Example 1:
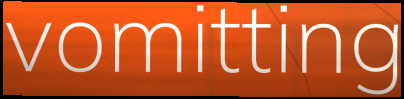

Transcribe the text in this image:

vomitting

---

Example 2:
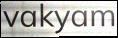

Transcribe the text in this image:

vakyam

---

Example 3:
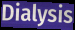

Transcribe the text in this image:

Dialysis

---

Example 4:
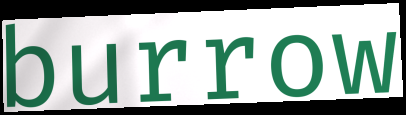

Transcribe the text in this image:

burrow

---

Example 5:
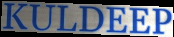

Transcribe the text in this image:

KULDEEP